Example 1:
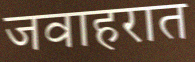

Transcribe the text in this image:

जवाहरात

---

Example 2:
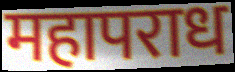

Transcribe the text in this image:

महापराध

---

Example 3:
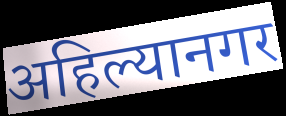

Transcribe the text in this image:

अहिल्यानगर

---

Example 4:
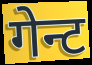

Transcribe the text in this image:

गेन्ट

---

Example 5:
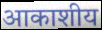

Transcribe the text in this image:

आकाशीय